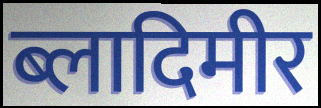
ब्लादिमीर